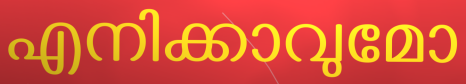
എനിക്കാവുമോ